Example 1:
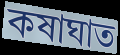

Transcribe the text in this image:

কষাঘাত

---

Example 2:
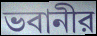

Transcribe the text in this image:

ভবানীর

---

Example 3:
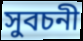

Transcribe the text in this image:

সুবচনী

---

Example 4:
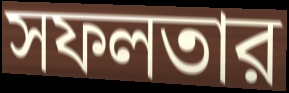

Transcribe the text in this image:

সফলতার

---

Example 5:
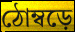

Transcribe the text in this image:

ঠোম্বড়ে